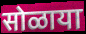
सोळाया